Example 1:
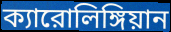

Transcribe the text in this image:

ক্যারোলিঙ্গিয়ান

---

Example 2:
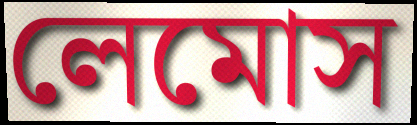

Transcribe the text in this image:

লেমোস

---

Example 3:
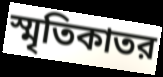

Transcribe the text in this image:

স্মৃতিকাতর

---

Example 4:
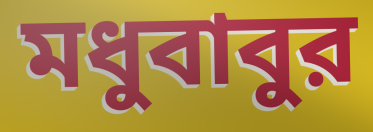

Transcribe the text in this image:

মধুবাবুর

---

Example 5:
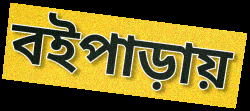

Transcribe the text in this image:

বইপাড়ায়